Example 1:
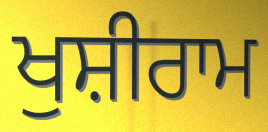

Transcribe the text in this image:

ਖੁਸ਼ੀਰਾਮ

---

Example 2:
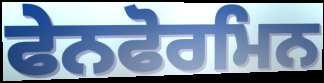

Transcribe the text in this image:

ਫੇਨਫੋਰਮਿਨ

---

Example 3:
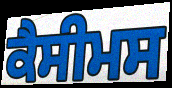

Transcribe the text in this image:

ਕੈਸੀਮਸ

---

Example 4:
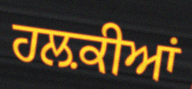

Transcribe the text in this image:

ਹਲ਼ਕੀਆਂ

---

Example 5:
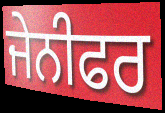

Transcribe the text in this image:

ਜੇਨੀਫਰ